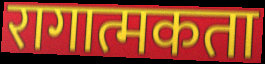
रागात्मकता